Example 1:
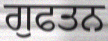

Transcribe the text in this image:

ਗੁਫਤਨ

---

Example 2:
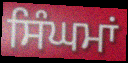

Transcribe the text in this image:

ਸਿੰਘਮਾਂ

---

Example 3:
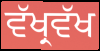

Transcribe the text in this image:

ਵੱਖ੍ਰਵੱਖ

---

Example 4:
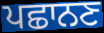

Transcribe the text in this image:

ਪਛਾਨਣ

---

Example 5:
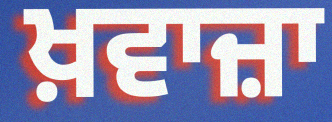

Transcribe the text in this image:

ਖ਼ਵਾਜ਼ਾ